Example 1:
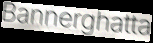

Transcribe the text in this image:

Bannerghatta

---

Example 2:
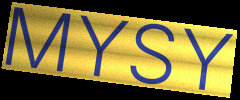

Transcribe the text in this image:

MYSY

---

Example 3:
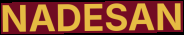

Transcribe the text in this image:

NADESAN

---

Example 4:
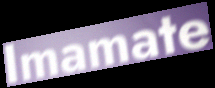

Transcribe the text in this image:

Imamate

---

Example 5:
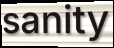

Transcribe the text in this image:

sanity